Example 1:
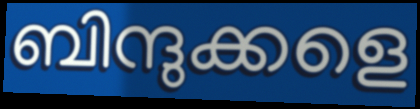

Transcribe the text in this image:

ബിന്ദുക്കളെ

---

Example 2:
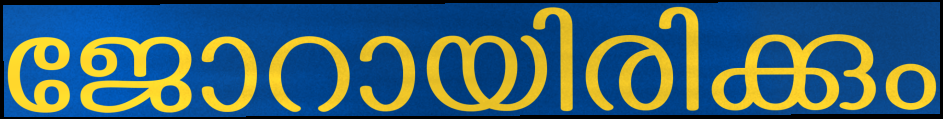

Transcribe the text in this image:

ജോറായിരിക്കും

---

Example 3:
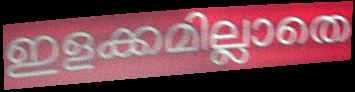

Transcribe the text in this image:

ഇളക്കമില്ലാതെ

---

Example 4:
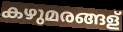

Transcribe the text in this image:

കഴുമരങ്ങള്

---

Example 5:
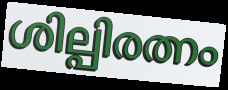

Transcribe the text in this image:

ശില്പിരത്നം